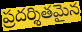
ప్రదర్శితమైన